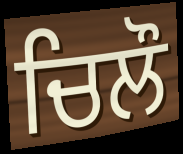
ਚਿਲੌ